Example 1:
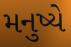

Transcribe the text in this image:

મનુષ્યે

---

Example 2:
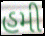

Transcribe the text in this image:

હમી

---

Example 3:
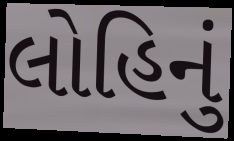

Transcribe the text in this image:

લોહિનું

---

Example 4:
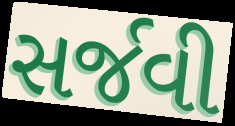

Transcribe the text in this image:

સર્જવી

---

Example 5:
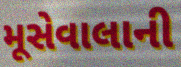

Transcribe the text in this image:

મૂસેવાલાની